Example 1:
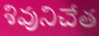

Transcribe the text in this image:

శివునిచేత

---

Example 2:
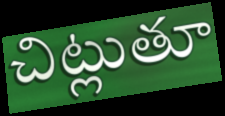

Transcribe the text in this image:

చిట్లుతూ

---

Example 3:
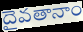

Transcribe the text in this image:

దైవతానాం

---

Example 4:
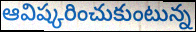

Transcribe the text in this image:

ఆవిష్కరించుకుంటున్న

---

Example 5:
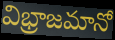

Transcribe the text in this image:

విభ్రాజమానో